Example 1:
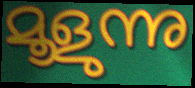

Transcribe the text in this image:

മൂളുന്നു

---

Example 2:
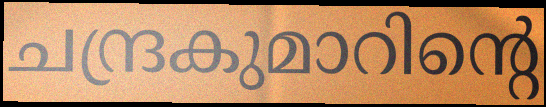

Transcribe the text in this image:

ചന്ദ്രകുമാറിന്റെ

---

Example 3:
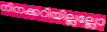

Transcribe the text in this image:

നിനക്കറിയില്ലല്ലോ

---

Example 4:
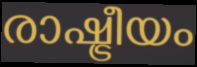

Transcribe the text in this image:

രാഷ്ട്രീയം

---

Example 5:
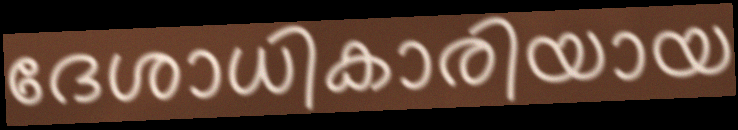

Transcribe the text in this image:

ദേശാധികാരിയായ